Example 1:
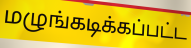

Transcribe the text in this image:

மழுங்கடிக்கப்பட்ட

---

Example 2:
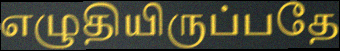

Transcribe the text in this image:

எழுதியிருப்பதே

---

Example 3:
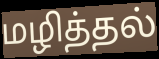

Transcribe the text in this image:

மழித்தல்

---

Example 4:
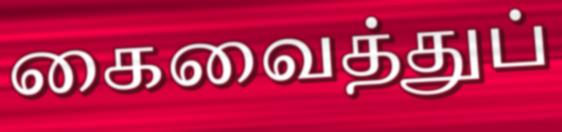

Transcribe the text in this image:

கைவைத்துப்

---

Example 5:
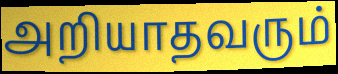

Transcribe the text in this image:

அறியாதவரும்